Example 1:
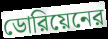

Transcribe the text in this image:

ডোরিয়েনের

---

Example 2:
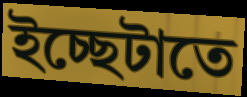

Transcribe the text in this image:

ইচ্ছেটাতে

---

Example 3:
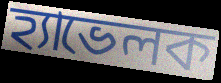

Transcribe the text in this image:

হ্যাভেলক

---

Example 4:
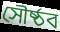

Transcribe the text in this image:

সৌষ্ঠব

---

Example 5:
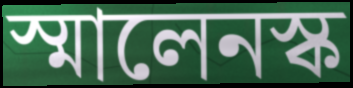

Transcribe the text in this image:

স্মালেনস্ক